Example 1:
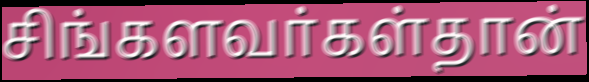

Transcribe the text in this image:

சிங்களவர்கள்தான்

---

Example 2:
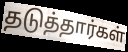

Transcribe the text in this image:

தடுத்தார்கள்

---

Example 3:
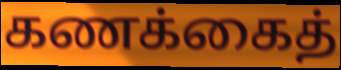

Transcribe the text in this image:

கணக்கைத்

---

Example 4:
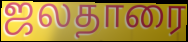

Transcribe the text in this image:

ஜலதாரை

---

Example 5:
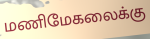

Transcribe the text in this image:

மணிமேகலைக்கு